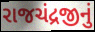
રાજચંદ્રજીનું